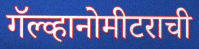
गॅल्व्हानोमीटराची